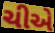
ચીએ